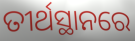
ତୀର୍ଥସ୍ଥାନରେ